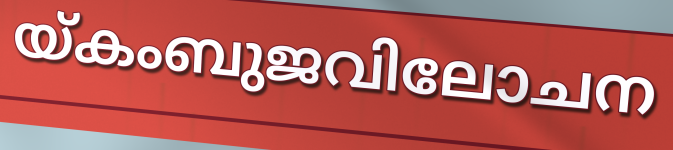
യ്കംബുജവിലോചന